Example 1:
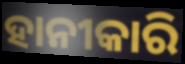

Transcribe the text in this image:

ହାନୀକାରି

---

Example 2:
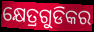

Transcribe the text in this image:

କ୍ଷେତ୍ରଗୁଡିକର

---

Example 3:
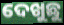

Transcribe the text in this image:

ଦେଖୁଛୁ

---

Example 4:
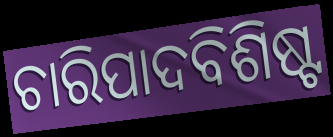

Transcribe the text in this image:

ଚାରିପାଦବିଶିଷ୍ଟ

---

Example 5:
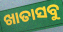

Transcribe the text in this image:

ଖାତାସବୁ